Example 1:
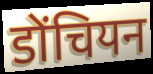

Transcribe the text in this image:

डोंचियन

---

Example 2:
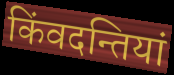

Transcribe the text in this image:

किंवदन्तियां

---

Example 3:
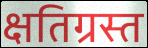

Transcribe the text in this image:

क्षतिग्रस्त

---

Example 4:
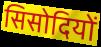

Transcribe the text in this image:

सिसोदियों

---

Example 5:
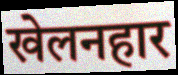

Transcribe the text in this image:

खेलनहार